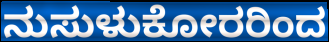
ನುಸುಳುಕೋರರಿಂದ